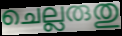
ചെല്ലരുതു